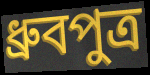
ধ্রুবপুত্র